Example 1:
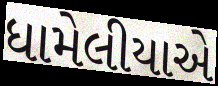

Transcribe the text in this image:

ધામેલીયાએ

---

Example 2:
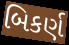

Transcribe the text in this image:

બિકર્ણ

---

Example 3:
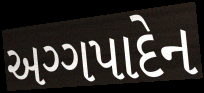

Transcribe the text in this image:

અગ્ગપાદેન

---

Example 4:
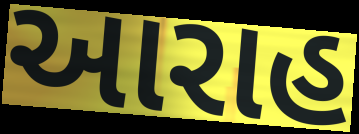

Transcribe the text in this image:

આરાહ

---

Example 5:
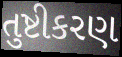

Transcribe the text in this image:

તુષ્ટીકરણ